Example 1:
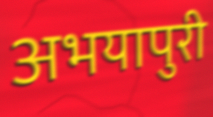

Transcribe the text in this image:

अभयापुरी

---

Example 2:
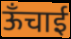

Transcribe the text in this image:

ऊँचाई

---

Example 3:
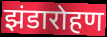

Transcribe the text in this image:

झंडारोहण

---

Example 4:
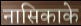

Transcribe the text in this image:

नासिकाके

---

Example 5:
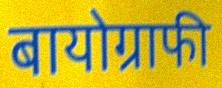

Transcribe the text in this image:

बायोग्राफी